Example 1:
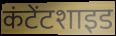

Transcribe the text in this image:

कंटेंटशाइड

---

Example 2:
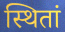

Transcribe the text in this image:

स्थितां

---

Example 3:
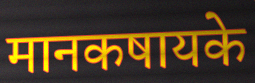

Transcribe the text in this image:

मानकषायके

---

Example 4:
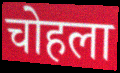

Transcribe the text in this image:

चोहला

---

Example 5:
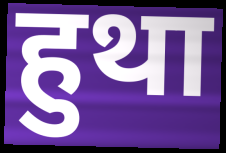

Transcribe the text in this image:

हुथा